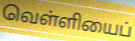
வெள்ளியைப்